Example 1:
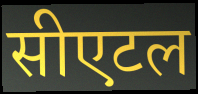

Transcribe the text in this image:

सीएटल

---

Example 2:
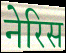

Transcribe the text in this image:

नेरिस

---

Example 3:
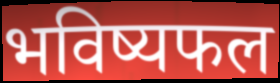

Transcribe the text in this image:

भविष्यफल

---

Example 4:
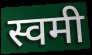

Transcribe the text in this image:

स्वमी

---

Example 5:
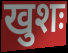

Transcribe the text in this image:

खुशः